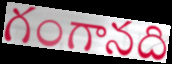
గంగానది